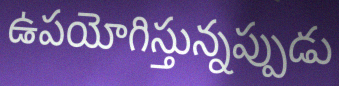
ఉపయోగిస్తున్నప్పుడు